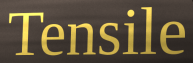
Tensile